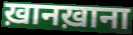
ख़ानख़ाना